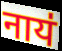
नाय॑